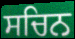
ਸਚਿਨ